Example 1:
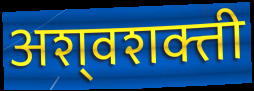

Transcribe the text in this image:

अश्वशक्ती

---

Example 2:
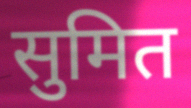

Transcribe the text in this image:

सुमित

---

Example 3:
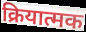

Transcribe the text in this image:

क्रियात्मक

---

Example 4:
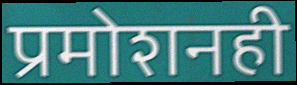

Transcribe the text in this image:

प्रमोशनही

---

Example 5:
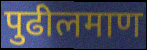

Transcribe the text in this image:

पुढीलमाण